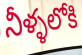
నీళ్ళలోకి